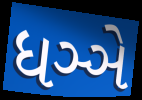
ધઞ્ઞે